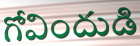
గోవిందుడి